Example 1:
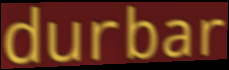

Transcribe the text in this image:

durbar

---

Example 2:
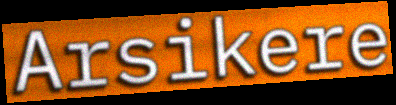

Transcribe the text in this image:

Arsikere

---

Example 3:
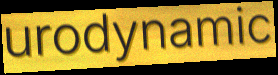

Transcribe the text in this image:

urodynamic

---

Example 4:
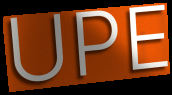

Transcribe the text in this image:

UPE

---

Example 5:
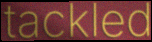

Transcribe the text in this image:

tackled